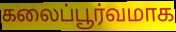
கலைப்பூர்வமாக